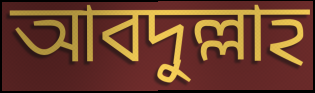
আবদুল্লাহ